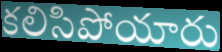
కలిసిపోయారు